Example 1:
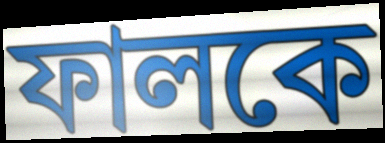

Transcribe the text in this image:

ফালকে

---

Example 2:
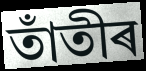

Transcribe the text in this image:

তাঁতীৰ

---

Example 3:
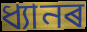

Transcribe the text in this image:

ধ্যানৰ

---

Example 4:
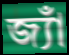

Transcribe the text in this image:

জ্যাঁ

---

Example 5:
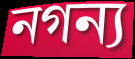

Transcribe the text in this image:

নগন্য